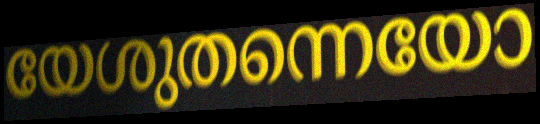
യേശുതന്നെയോ